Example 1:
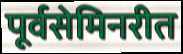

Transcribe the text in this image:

पूर्वसेमिनरीत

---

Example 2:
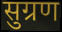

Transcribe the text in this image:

सुग्रण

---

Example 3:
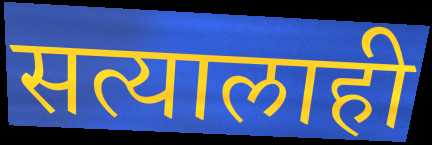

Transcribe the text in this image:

सत्यालाही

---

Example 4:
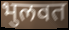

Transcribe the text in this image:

भुलवत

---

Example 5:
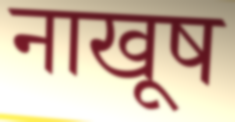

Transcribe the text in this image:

नाखूष